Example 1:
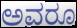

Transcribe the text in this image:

ಅವರೂ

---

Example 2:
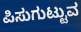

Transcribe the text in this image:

ಪಿಸುಗುಟ್ಟುವ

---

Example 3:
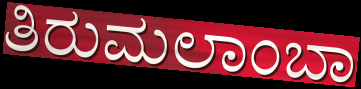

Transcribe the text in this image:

ತಿರುಮಲಾಂಬಾ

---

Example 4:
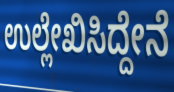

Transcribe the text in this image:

ಉಲ್ಲೇಖಿಸಿದ್ದೇನೆ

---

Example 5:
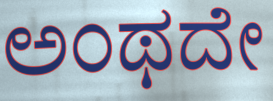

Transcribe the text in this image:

ಅಂಥದೇ